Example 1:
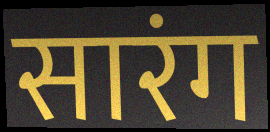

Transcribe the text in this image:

सारंग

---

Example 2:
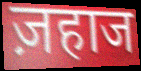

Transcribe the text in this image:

ज़हाज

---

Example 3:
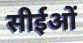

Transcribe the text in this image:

सीईओं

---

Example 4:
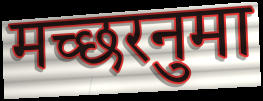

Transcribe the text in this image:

मच्छरनुमा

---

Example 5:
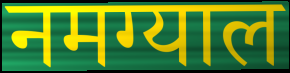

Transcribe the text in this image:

नमग्याल